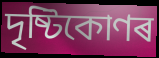
দৃষ্টিকোণৰ